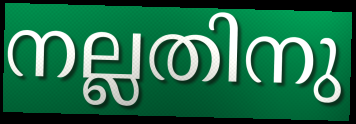
നല്ലതിനു